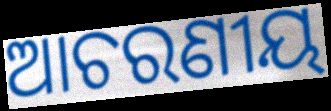
ଆଚରଣୀୟ